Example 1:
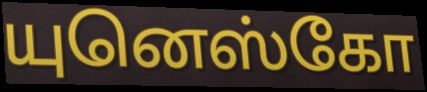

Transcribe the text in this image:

யுனெஸ்கோ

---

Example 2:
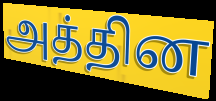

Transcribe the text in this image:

அத்தின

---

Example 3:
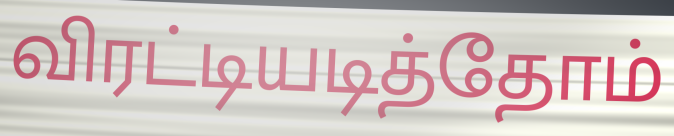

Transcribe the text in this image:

விரட்டியடித்தோம்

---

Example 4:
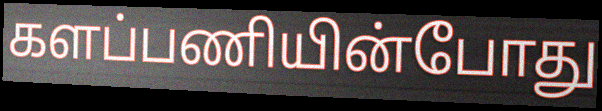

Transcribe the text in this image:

களப்பணியின்போது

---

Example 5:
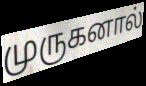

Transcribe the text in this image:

முருகனால்